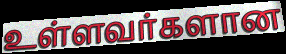
உள்ளவர்களான